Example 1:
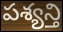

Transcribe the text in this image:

పశ్యన్తి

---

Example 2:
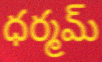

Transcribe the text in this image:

ధర్మమ్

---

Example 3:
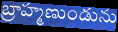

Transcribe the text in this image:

బ్రాహ్మణుండును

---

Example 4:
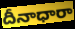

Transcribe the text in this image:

దీనాధారా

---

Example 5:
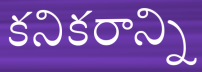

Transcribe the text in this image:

కనికరాన్ని